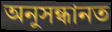
অনুসন্ধানত